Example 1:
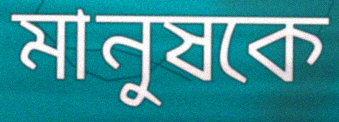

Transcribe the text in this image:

মানুষকে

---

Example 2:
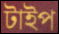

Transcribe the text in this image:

টাইপ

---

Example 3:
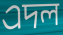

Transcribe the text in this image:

এদল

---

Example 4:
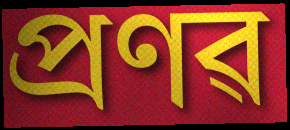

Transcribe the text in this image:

প্ৰণৱ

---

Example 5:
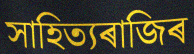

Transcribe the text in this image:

সাহিত্যৰাজিৰ